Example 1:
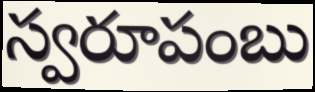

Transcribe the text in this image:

స్వరూపంబు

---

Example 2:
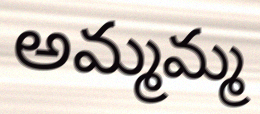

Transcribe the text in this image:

అమ్మమ్మ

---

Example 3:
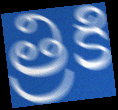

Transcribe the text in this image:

త్రికి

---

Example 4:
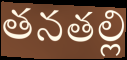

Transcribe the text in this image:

తనతల్లి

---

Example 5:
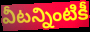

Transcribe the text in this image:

వీటన్నింటికీ